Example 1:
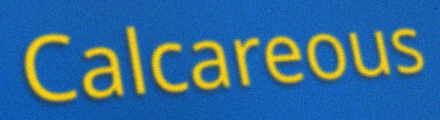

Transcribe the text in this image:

Calcareous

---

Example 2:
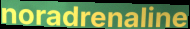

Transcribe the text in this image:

noradrenaline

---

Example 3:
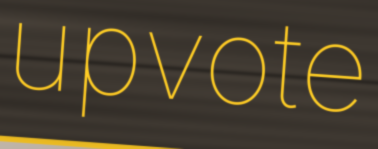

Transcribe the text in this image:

upvote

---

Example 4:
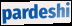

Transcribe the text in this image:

pardeshi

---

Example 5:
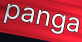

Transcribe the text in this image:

panga